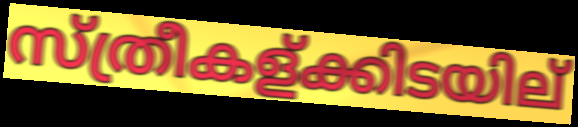
സ്ത്രീകള്ക്കിടയില്